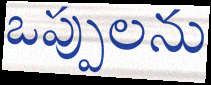
ఒప్పులను